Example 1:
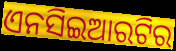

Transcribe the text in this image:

ଏନସିଇଆରଟିର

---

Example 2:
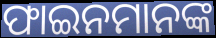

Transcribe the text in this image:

ଫାଇନମାନଙ୍କ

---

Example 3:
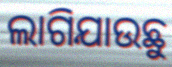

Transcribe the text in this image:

ଲାଗିଯାଉଛୁ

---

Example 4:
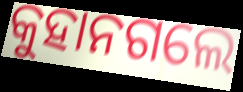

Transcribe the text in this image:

କୁହାନଗଲେ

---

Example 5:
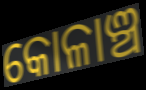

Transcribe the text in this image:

କୋଳାଞ୍ଚ